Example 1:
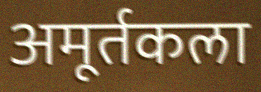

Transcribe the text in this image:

अमूर्तकला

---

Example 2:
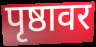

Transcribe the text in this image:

पृष्ठावर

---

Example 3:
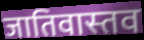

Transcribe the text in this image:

जातिवास्तव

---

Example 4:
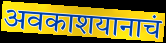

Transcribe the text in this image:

अवकाशयानाचं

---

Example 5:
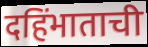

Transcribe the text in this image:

दहिंभाताची